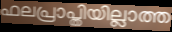
ഫലപ്രാപ്തിയില്ലാത്ത